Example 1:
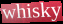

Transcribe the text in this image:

whisky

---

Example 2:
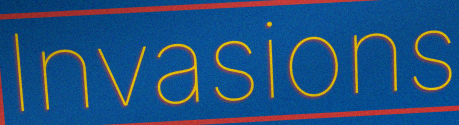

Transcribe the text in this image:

Invasions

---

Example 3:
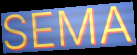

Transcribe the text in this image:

SEMA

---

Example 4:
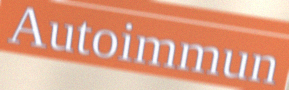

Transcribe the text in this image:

Autoimmun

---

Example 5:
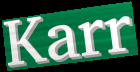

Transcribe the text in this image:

Karr